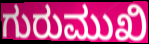
ಗುರುಮುಖಿ